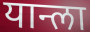
यान्ला